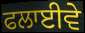
ਫਲਾਈਵੇ